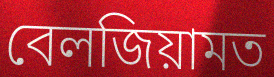
বেলজিয়ামত